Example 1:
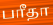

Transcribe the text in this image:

பரீதா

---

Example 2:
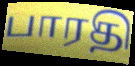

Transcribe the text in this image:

பாரதி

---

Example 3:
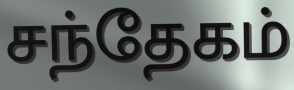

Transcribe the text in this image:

சந்தேகம்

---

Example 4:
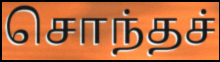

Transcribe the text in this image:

சொந்தச்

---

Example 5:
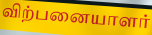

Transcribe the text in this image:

விற்பனையாளர்